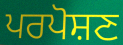
ਪਰਪੋਸ਼ਣ